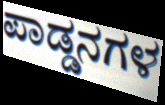
ಪಾಡ್ಡನಗಳ